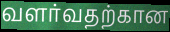
வளர்வதற்கான